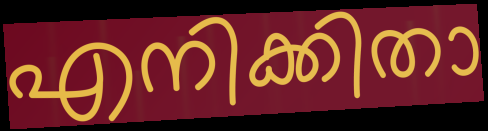
എനിക്കിതാ